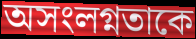
অসংলগ্নতাকে